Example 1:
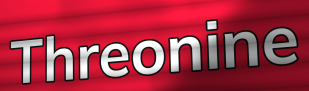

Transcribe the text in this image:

Threonine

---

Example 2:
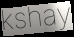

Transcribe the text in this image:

kshay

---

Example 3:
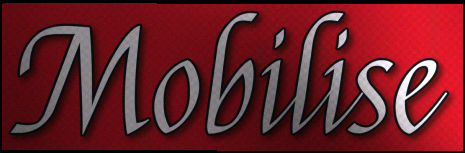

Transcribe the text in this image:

Mobilise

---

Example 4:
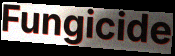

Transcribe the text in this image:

Fungicide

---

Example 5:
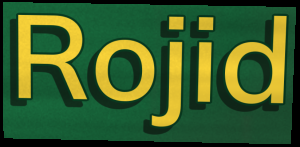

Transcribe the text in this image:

Rojid